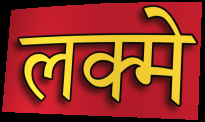
लक्मे